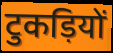
टुकड़ियों